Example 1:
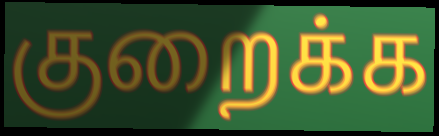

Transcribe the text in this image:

குறைக்க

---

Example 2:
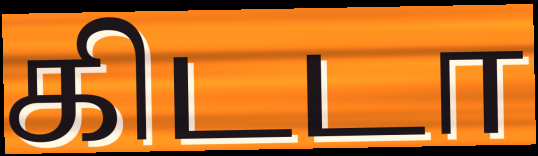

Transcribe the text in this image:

கிடடா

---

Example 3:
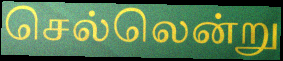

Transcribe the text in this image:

செல்லென்று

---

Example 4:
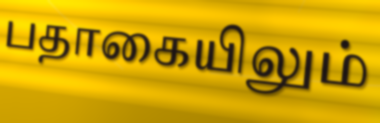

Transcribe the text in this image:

பதாகையிலும்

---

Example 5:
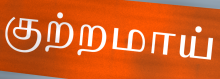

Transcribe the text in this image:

குற்றமாய்